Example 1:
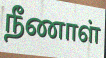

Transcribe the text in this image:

நீணாள்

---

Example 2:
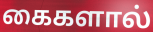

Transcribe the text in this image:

கைகளால்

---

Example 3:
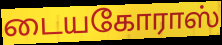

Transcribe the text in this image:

டையகோராஸ்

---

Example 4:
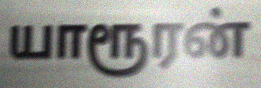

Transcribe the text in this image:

யாரூரன்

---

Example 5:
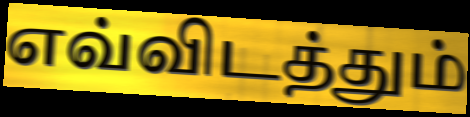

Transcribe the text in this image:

எவ்விடத்தும்